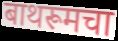
बाथरूमचा